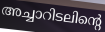
അച്ചാറിടലിന്റെ